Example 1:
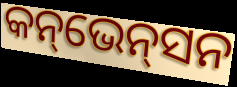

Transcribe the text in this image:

କନ୍‌ଭେନ୍‌ସନ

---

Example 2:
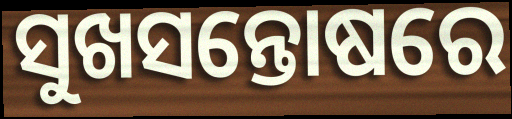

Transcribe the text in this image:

ସୁଖସନ୍ତୋଷରେ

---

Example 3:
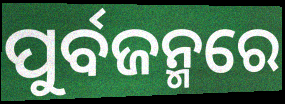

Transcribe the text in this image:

ପୁର୍ବଜନ୍ମରେ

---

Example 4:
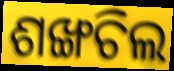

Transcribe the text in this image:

ଶଙ୍ଖଚିଲ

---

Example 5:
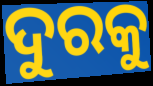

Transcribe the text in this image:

ଦୁରକୁ